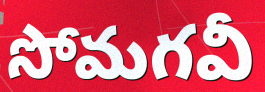
సోమగవీ